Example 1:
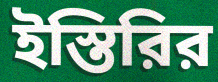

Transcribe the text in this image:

ইস্তিরির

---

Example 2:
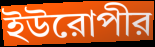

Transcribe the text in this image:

ইউরোপীর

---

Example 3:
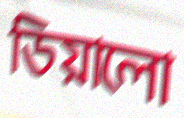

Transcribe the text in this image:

ডিয়ালো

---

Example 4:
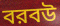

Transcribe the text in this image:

বরবউ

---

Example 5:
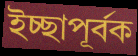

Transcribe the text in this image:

ইচ্ছাপূর্বক